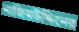
নাজিমউদ্দিনের